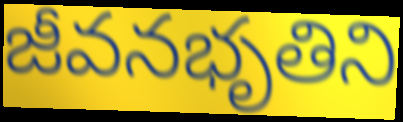
జీవనభృతిని